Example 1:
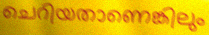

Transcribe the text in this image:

ചെറിയതാണെങ്കിലും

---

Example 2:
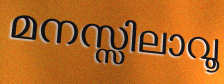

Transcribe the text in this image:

മനസ്സിലാവൂ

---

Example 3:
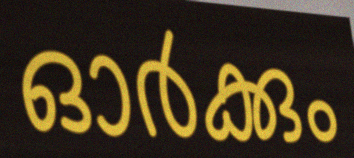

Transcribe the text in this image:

ഓർക്കും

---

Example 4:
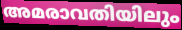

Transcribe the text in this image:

അമരാവതിയിലും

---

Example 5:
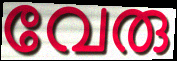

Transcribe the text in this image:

വേരു